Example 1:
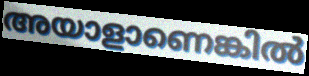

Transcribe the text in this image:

അയാളാണെങ്കിൽ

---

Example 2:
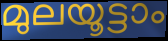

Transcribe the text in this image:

മുലയൂട്ടാം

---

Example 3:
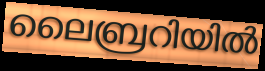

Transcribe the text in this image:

ലൈബ്രറിയിൽ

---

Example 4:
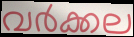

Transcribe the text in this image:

വർക്കല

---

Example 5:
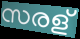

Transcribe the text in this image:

സരള്